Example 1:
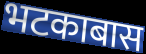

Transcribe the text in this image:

भटकाबास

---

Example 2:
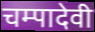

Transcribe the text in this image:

चम्पादेवी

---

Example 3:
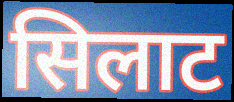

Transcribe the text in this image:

सिलाट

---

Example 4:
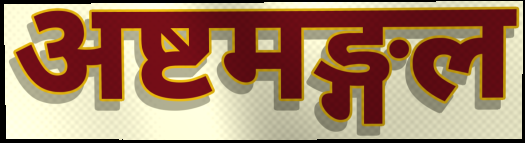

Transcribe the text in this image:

अष्टमङ्गल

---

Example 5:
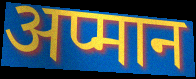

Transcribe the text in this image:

अप्मान